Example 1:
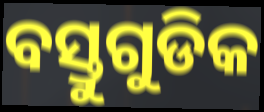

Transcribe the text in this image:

ବସ୍ତୁଗୁଡିକ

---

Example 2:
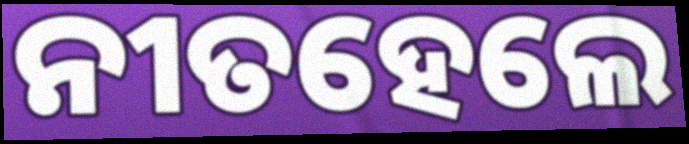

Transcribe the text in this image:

ନୀତହେଲେ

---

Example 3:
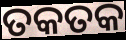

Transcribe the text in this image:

ତକତକ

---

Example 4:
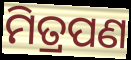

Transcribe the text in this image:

ମିତ୍ରପଣ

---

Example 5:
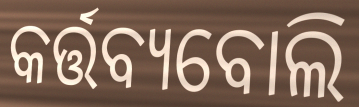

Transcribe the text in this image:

କର୍ତ୍ତବ୍ୟବୋଲି